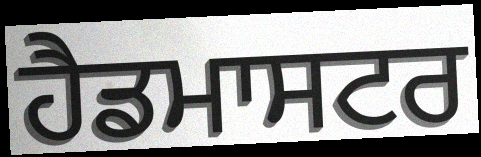
ਹੈਡਮਾਸਟਰ